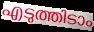
എടുത്തിടാം